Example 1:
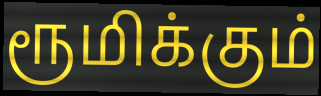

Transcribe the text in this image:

ரூமிக்கும்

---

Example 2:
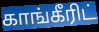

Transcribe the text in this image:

காங்கீரிட்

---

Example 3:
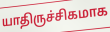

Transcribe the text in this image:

யாதிருச்சிகமாக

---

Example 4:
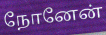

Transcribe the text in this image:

நோனேன்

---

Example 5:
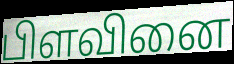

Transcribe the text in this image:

பிளவினை